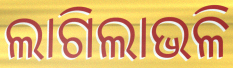
ଲାଗିଲାଭଳି